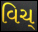
વિચ્